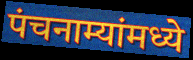
पंचनाम्यांमध्ये